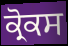
ਕ੍ਰੋਕਸ